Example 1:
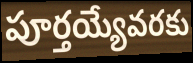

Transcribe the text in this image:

పూర్తయ్యేవరకు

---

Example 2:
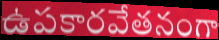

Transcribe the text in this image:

ఉపకారవేతనంగా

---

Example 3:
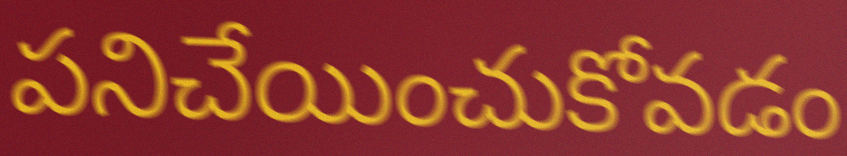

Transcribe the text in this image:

పనిచేయించుకోవడం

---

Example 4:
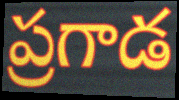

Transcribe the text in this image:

ప్రగాడ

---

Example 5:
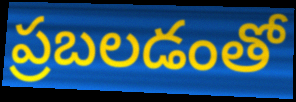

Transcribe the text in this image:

ప్రబలడంతో